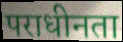
पराधीनता